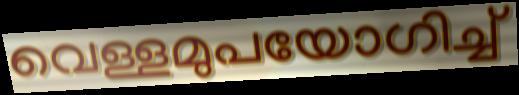
വെള്ളമുപയോഗിച്ച്